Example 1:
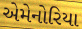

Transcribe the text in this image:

એમેનોરિયા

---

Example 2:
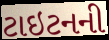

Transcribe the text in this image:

ટાઇટનની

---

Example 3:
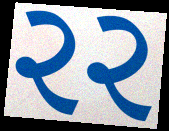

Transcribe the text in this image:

રર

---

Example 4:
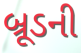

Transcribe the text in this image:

બ્રૂડની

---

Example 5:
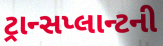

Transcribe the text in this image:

ટ્રાન્સપ્લાન્ટની